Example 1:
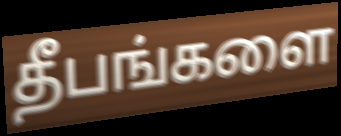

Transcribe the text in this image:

தீபங்களை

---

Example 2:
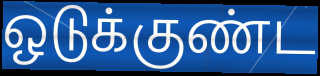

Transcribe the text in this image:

ஒடுக்குண்ட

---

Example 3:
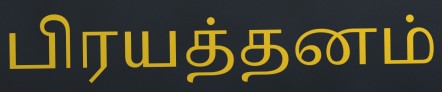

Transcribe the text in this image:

பிரயத்தனம்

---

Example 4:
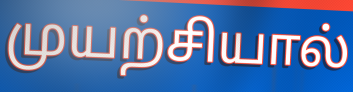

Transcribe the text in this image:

முயற்சியால்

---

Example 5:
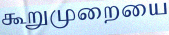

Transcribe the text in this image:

கூறுமுறையை